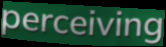
perceiving